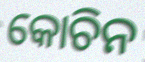
କୋଚିନ